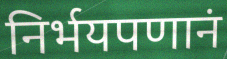
निर्भयपणानं